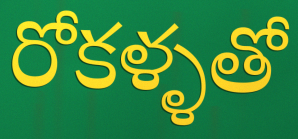
రోకళ్ళతో